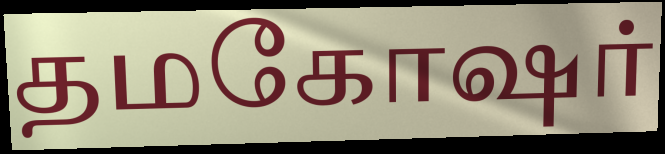
தமகோஷர்